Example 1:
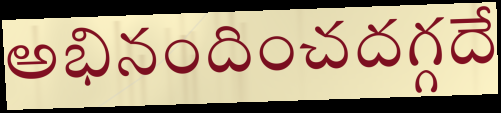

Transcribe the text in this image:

అభినందించదగ్గదే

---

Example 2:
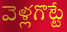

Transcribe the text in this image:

వెళ్లగొట్టే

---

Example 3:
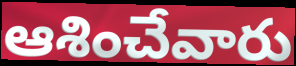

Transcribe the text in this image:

ఆశించేవారు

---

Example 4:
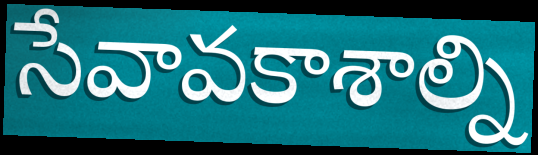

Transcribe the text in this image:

సేవావకాశాల్ని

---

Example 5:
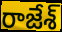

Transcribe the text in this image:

రాజేశ్